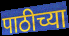
पाठीच्या